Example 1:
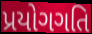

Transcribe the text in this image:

પ્રયોગગતિ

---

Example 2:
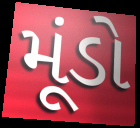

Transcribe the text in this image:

મૂંડો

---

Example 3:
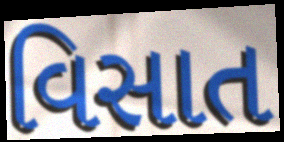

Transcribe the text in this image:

વિસાત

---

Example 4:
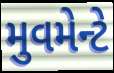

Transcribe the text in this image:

મુવમેન્ટે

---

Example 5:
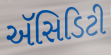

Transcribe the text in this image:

ઍસિડિટી